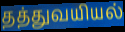
தத்துவயியல்